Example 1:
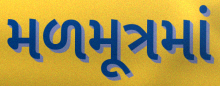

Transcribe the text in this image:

મળમૂત્રમાં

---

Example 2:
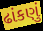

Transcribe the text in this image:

ઢાંકણું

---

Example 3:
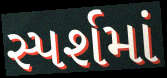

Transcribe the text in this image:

સ્પર્શમાં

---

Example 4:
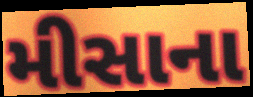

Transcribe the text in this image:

મીસાના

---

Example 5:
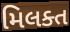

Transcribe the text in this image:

મિલક્ત